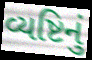
વ્યષ્ટિનું